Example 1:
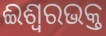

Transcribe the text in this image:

ଈଶ୍ୱରଭକ୍ତ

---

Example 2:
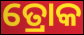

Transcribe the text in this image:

ତ୍ରୋକ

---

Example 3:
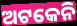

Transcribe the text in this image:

ଅଟକେନି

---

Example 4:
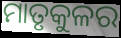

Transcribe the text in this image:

ମାତୃକୁଳର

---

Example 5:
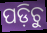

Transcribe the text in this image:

ପଡ଼ିଚୁ